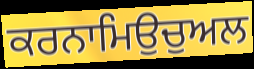
ਕਰਨਾਮਿਉਚੁਅਲ